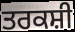
ਤਰਕਸ਼ੀ